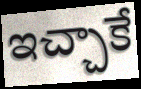
ఇచ్చాకే